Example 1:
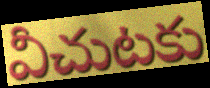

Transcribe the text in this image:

వీచుటకు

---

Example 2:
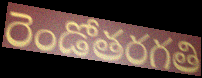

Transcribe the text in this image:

రెండోతరగతి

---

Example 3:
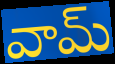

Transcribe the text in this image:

వామ్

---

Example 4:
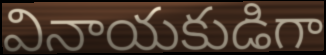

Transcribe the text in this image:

వినాయకుడిగా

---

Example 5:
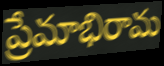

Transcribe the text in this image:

ప్రేమాభిరామ